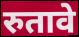
रुतावे